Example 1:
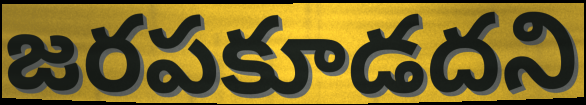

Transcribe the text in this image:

జరపకూడదని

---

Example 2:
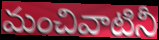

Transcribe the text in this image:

మంచివాటినీ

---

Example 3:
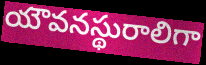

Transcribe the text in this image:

యౌవనస్థురాలిగా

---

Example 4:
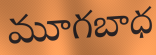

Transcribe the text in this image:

మూగబాధ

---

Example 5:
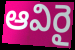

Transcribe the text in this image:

ఆవిరై